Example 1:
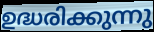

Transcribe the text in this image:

ഉദ്ധരിക്കുന്നു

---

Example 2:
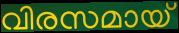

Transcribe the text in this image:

വിരസമായ്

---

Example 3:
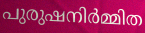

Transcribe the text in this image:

പുരുഷനിർമ്മിത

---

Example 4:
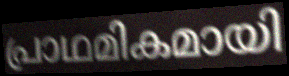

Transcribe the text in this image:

പ്രാഥമികമായി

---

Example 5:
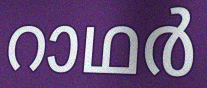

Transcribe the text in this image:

റാഥർ